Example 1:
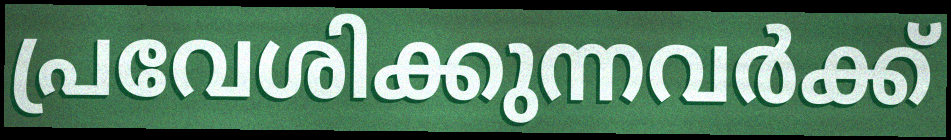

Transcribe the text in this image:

പ്രവേശിക്കുന്നവർക്ക്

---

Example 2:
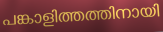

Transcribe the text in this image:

പങ്കാളിത്തത്തിനായി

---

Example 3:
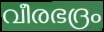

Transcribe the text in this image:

വീരഭദ്രം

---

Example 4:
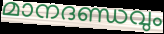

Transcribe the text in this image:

മാനദണ്ഡവും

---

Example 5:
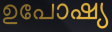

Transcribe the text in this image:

ഉപോഷ്യ